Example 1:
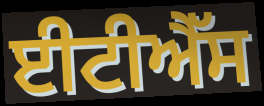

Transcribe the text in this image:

ਈਟੀਐੱਸ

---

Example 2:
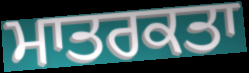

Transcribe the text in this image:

ਮਾਤਰਕਤਾ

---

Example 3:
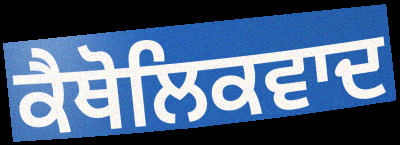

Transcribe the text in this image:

ਕੈਥੋਲਿਕਵਾਦ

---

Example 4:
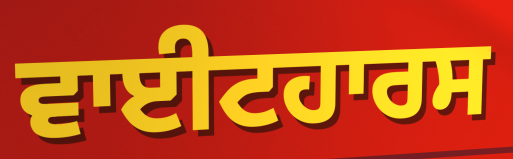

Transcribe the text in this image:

ਵਾਈਟਹਾਰਸ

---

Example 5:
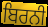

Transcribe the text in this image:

ਬਿਰਨੀ